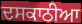
ਦਸਕਾਠੀਆ